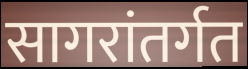
सागरांतर्गत